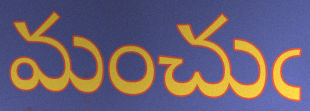
మంచుఁ